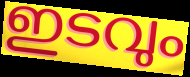
ഇടവും